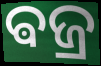
ଵଜ୍ର